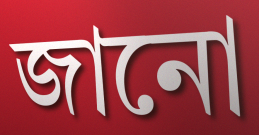
জানো